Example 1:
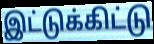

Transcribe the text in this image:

இட்டுக்கிட்டு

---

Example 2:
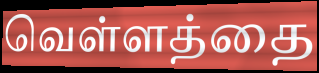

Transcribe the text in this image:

வெள்ளத்தை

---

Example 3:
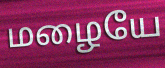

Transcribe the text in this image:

மழையே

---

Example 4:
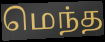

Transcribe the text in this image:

மெந்த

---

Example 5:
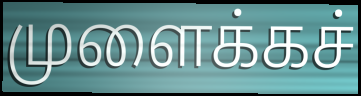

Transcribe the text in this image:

முளைக்கச்